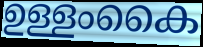
ഉള്ളംകൈ